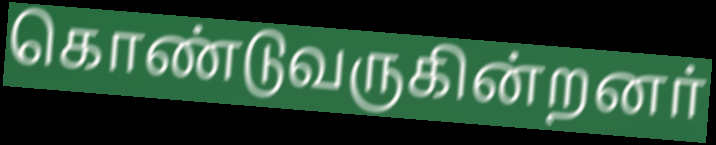
கொண்டுவருகின்றனர்